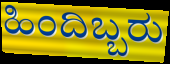
ಹಿಂದಿಬ್ಬರು